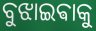
ବୁଝାଇଵାକୁ